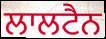
ਲਾਲਟੈਨ